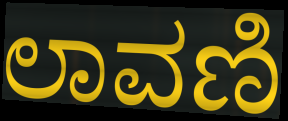
ಲಾವಣಿ